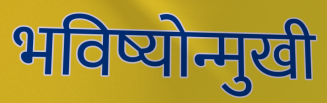
भविष्योन्मुखी